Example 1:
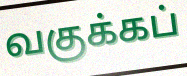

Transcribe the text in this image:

வகுக்கப்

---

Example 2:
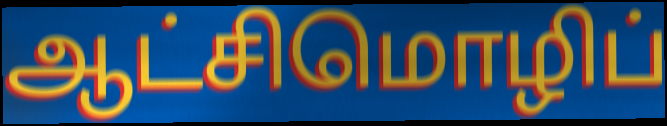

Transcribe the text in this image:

ஆட்சிமொழிப்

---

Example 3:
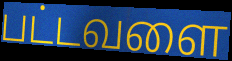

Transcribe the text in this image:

பட்டவளை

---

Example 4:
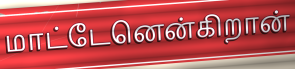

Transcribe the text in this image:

மாட்டேனென்கிறான்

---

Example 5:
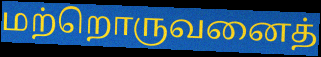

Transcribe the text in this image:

மற்றொருவனைத்